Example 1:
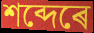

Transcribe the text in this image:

শব্দেৰে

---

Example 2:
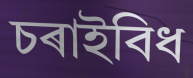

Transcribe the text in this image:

চৰাইবিধ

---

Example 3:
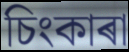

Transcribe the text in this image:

চিংকাৰা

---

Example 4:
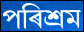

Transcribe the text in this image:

পৰিশ্ৰম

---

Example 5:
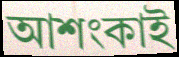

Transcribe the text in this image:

আশংকাই